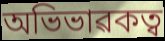
অভিভাৱকত্ব